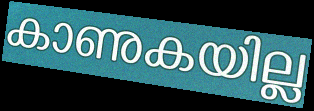
കാണുകയില്ല